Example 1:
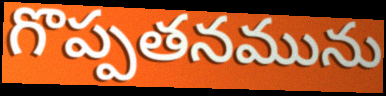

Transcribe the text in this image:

గొప్పతనమును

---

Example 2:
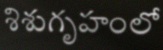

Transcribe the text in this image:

శిశుగృహంలో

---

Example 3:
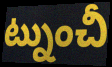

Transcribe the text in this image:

ట్నుంచీ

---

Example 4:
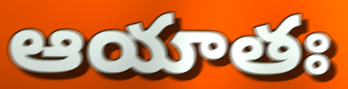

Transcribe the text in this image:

ఆయాతః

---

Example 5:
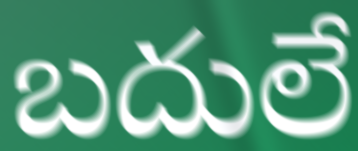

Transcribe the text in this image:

బదులే